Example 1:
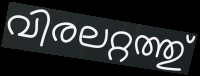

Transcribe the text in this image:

വിരലറ്റത്തു്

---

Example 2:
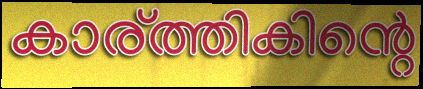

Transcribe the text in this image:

കാര്ത്തികിന്റെ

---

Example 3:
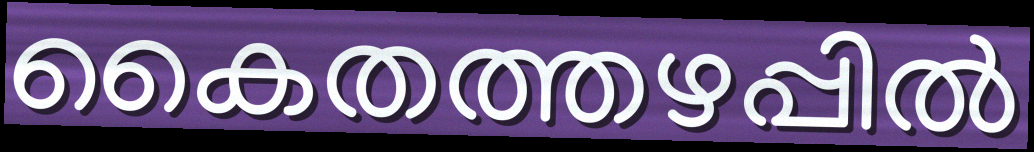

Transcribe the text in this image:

കൈതത്തഴപ്പിൽ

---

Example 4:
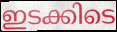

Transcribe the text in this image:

ഇടക്കിടെ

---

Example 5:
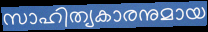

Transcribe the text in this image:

സാഹിത്യകാരനുമായ